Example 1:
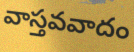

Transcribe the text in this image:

వాస్తవవాదం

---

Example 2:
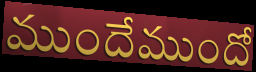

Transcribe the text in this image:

ముందేముందో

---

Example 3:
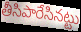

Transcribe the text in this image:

తీసిపారేసినట్టు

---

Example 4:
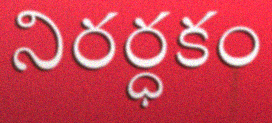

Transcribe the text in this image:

నిరర్ధకం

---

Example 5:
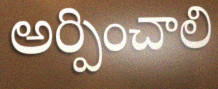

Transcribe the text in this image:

అర్పించాలి